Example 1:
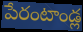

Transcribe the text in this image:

పేరంటాండ్ల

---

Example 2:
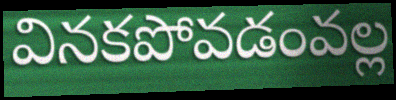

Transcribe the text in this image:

వినకపోవడంవల్ల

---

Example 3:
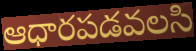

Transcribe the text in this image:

ఆధారపడవలసి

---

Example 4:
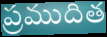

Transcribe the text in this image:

ప్రముదిత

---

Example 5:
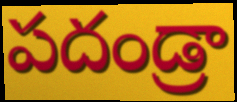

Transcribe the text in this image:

పదండ్రా